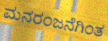
ಮನರಂಜನೆಗಿಂತ